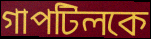
গাপটিলকে